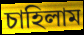
চাহিলাম